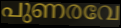
പുണരവേ